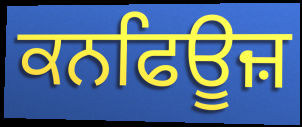
ਕਨਫਿਊਜ਼